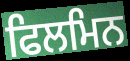
ਫਿਲਮਿਨ